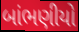
બાંભણીયો